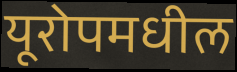
यूरोपमधील